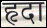
हृदा